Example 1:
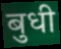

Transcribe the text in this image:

बुधी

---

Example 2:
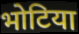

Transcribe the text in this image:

भोटिया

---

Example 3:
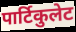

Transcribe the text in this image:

पार्टिकुलेट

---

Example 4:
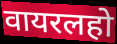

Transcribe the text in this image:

वायरलहो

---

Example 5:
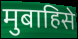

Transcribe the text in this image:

मुबाहिसे